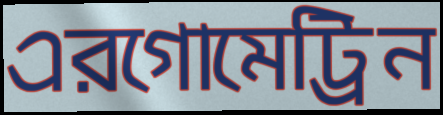
এরগোমেট্রিন